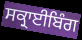
ਸਕ੍ਰਾਈਬਿੰਗ